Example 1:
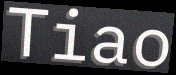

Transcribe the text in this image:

Tiao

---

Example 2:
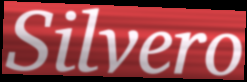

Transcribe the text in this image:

Silvero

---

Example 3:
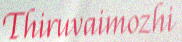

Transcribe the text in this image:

Thiruvaimozhi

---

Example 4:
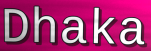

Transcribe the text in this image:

Dhaka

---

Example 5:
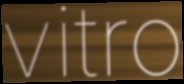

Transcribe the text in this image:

vitro